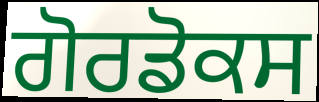
ਗੋਰਡੋਕਸ